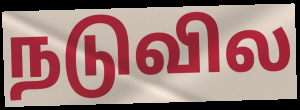
நடுவில